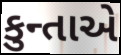
કુન્તાએ